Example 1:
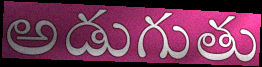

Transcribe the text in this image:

అడుగుతు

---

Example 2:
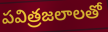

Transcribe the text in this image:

పవిత్రజలాలతో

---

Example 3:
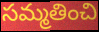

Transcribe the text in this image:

సమ్మతించి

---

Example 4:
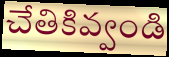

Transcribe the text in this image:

చేతికివ్వండి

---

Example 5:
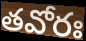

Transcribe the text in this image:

తవోరః